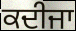
ਕਦੀਜਾ